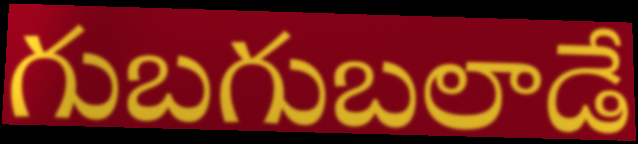
గుబగుబలాడే